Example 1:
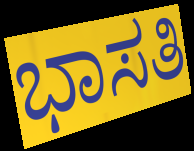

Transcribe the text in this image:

ಭಾಸತಿ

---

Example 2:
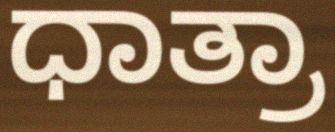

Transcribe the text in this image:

ಧಾತ್ರಾ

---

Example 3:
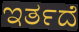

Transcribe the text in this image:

ಇರ್ತದೆ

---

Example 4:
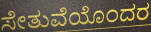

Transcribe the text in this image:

ಸೇತುವೆಯೊಂದರ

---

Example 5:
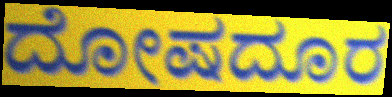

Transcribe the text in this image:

ದೋಷದೂರ